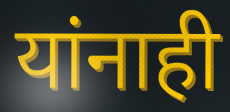
यांनाही